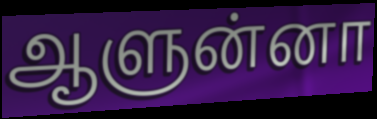
ஆளுன்னா